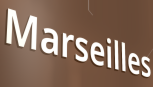
Marseilles